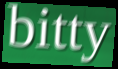
bitty